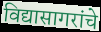
विद्यासागरांचे